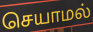
செயாமல்